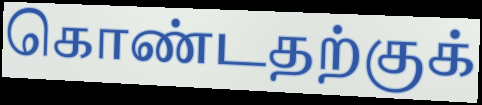
கொண்டதற்குக்